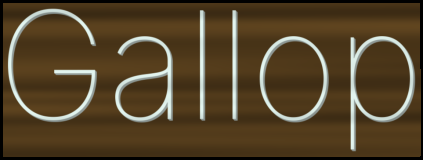
Gallop